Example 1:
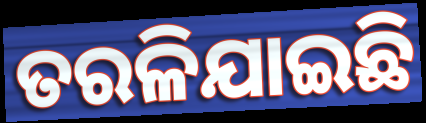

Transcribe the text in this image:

ତରଳିଯାଇଛି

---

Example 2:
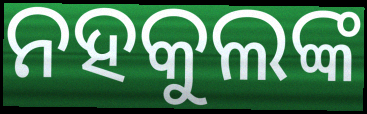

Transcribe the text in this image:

ନହକୁଲଙ୍କ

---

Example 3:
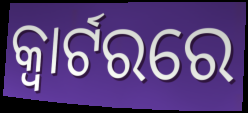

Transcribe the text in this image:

କ୍ୱାର୍ଟରରେ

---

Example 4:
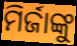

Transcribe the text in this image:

ମିର୍ଜାଙ୍କୁ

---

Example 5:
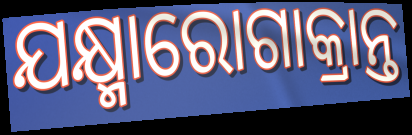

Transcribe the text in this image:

ଯକ୍ଷ୍ମାରୋଗାକ୍ରାନ୍ତ